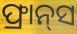
ଫ୍ରାନ୍‍ସ